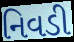
નિવડી